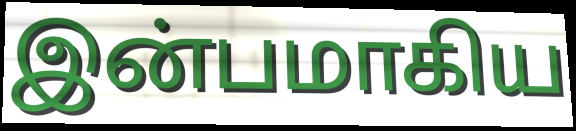
இன்பமாகிய